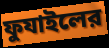
ফুযাইলের